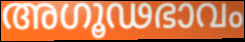
അഗൂഢഭാവം